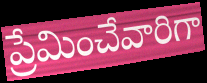
ప్రేమించేవారిగా